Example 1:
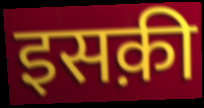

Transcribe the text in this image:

इसक़ी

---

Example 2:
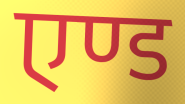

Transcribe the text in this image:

एण्ड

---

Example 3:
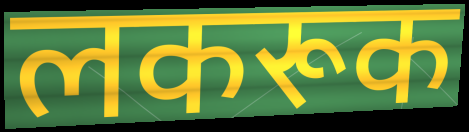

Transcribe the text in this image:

लकरूक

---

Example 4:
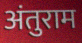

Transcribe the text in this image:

अंतुराम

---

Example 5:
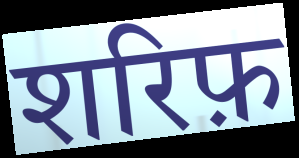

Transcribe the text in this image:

शरिफ़